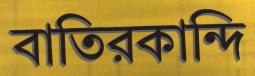
বাতিরকান্দি